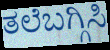
ತಲೆಬಗ್ಗಿಸಿ